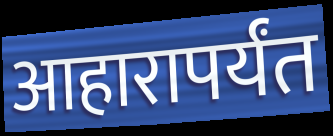
आहारापर्यंत